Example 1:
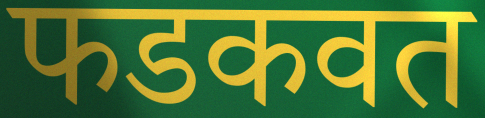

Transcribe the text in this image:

फडकवत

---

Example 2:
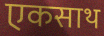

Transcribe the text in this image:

एकसाथ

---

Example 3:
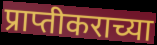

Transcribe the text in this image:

प्राप्तीकराच्या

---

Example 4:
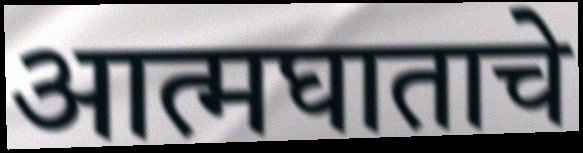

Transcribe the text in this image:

आत्मघाताचे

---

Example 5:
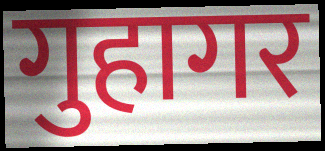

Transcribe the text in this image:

गुहागर